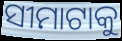
ସୀମାଟାକୁ